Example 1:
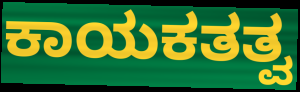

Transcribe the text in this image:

ಕಾಯಕತತ್ವ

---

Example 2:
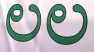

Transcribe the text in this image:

ಲಲ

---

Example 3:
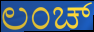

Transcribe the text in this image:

ಲಂಚ್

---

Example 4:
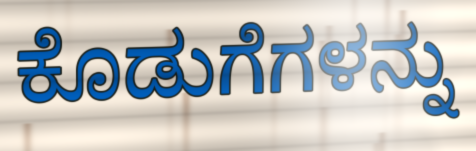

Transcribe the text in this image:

ಕೊಡುಗೆಗಳನ್ನು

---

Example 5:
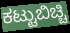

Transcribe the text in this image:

ಕಟ್ಟುಬಿಚ್ಚಿ